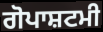
ਗੋਪਾਸ਼ਟਮੀ